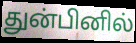
துன்பினில்